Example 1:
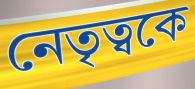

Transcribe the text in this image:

নেতৃত্বকে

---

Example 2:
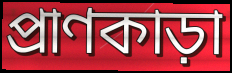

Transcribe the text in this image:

প্রাণকাড়া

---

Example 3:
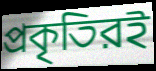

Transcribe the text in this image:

প্রকৃতিরই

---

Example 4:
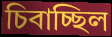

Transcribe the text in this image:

চিবাচ্ছিল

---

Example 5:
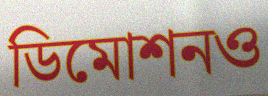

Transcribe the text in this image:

ডিমোশনও